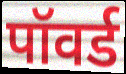
पॉवर्ड